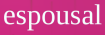
espousal